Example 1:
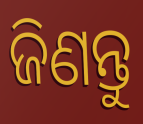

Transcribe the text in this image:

ଜିଣନ୍ତୁ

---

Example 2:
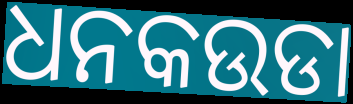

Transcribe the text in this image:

ଧନକଉଡା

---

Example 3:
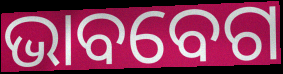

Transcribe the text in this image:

ଭାବବେଗ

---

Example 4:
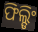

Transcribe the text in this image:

ଫିଲ୍ଡିଂ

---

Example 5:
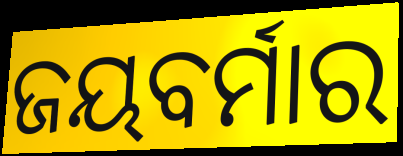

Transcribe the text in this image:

ଜୟବର୍ମାର